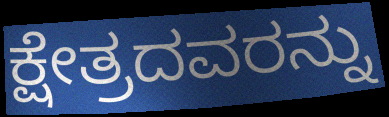
ಕ್ಷೇತ್ರದವರನ್ನು